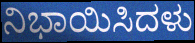
ನಿಭಾಯಿಸಿದಳು